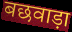
बछवाड़ा